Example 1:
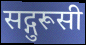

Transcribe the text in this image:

सद्गुरूसी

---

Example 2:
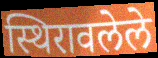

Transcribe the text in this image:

स्थिरावलेले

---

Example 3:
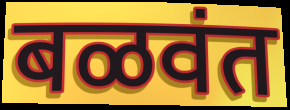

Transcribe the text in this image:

बळवंत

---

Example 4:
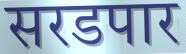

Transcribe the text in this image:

सरडपार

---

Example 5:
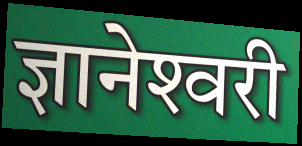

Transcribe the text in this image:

ज्ञानेश्‍वरी